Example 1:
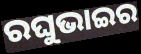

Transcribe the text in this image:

ରଘୁଭାଇର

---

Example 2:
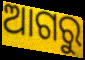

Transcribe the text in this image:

ଆଗରୁ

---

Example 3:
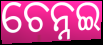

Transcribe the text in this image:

ଚେନ୍ନଇ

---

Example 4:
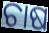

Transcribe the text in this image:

ଚାଷ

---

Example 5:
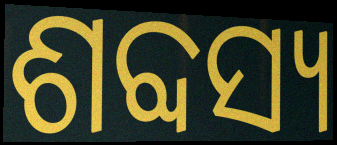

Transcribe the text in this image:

ଶବ୍ଦସ୍ଯ